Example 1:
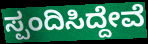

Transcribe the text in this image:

ಸ್ಪಂದಿಸಿದ್ದೇವೆ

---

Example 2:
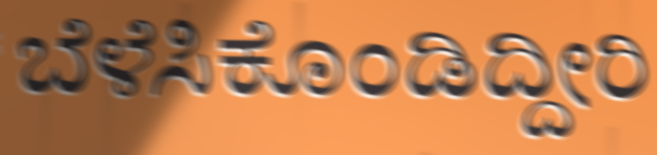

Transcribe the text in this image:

ಬೆಳೆಸಿಕೊಂಡಿದ್ದೀರಿ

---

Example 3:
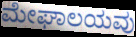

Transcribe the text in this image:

ಮೇಘಾಲಯವು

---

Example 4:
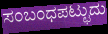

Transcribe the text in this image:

ಸಂಬಂಧಪಟ್ಟುದು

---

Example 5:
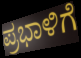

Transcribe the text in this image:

ಪ್ರಭಾಳಿಗೆ